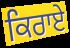
ਕਿਰਾਏ